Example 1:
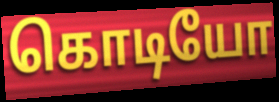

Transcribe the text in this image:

கொடியோ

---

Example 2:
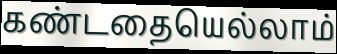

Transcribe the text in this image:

கண்டதையெல்லாம்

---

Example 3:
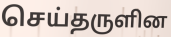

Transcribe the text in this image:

செய்தருளின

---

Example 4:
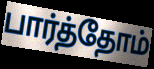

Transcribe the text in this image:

பார்த்தோம்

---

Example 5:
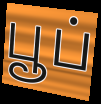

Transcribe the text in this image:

பூப்